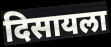
दिसायला